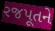
રજપૂતને